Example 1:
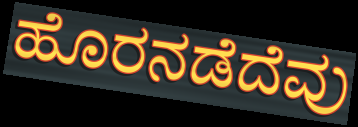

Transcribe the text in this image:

ಹೊರನಡೆದೆವು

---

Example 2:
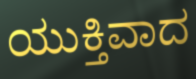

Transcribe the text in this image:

ಯುಕ್ತಿವಾದ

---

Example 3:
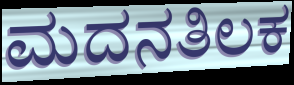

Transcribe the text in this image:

ಮದನತಿಲಕ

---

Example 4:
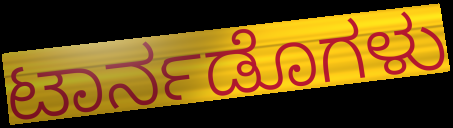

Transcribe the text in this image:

ಟಾರ್ನಡೊಗಳು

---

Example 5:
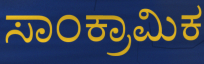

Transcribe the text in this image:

ಸಾಂಕ್ರಾಮಿಕ